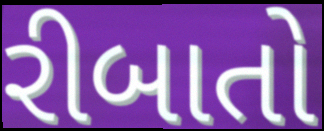
રીબાતો